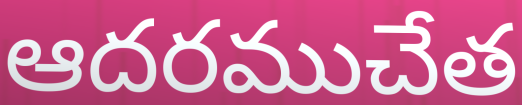
ఆదరముచేత